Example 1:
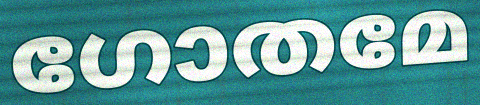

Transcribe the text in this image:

ഗോതമേ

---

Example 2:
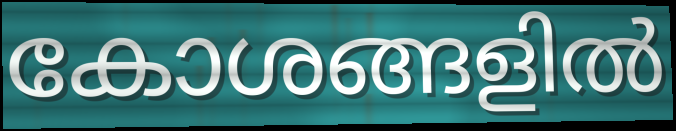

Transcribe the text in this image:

കോശങ്ങളിൽ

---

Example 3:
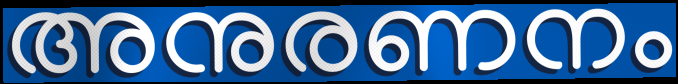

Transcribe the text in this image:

അനുരണനം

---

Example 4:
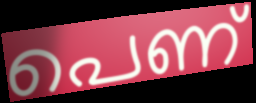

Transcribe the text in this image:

പെണ്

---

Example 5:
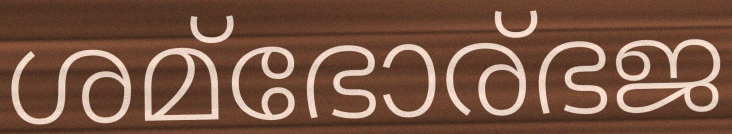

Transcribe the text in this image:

ശമ്ഭോര്ഭജ